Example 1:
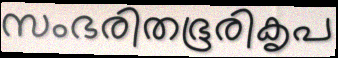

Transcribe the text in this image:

സംഭരിതഭൂരികൃപ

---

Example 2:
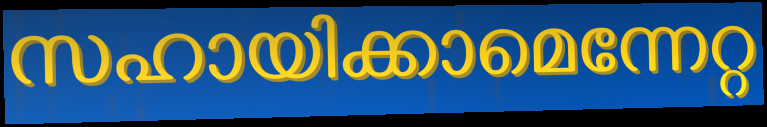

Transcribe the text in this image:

സഹായിക്കാമെന്നേറ്റ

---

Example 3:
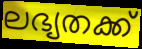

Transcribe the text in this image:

ലഭ്യതക്ക്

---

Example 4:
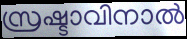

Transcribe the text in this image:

സ്രഷ്ടാവിനാൽ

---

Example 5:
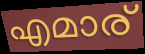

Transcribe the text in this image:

എമാര്